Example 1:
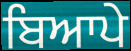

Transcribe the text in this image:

ਬਿਆਪੇ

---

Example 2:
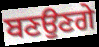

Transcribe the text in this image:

ਬਣਉਣਗੇ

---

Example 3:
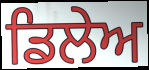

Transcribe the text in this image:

ਡਿਲੇਅ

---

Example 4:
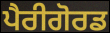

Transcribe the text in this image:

ਪੈਰੀਗੋਰਡ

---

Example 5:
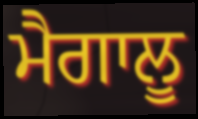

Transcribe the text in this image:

ਮੈਗਾਲੂ